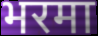
भरमा